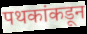
पथकांकडून